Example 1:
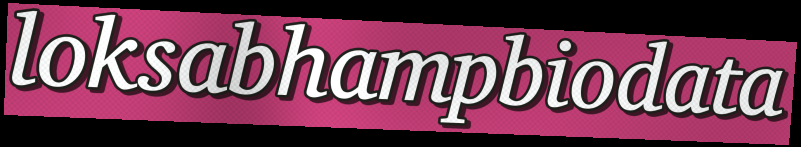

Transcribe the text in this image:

loksabhampbiodata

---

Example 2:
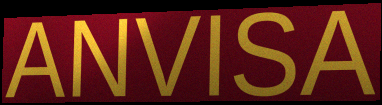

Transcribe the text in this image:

ANVISA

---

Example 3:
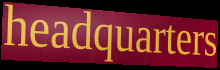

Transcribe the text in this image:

headquarters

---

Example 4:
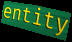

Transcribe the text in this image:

entity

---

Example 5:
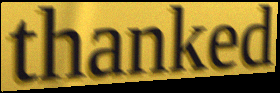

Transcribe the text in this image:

thanked